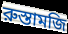
রুস্তামজি